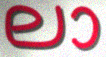
ലാ